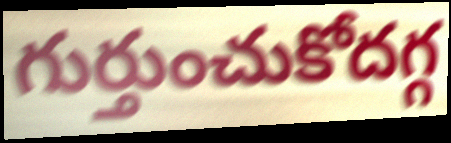
గుర్తుంచుకోదగ్గ